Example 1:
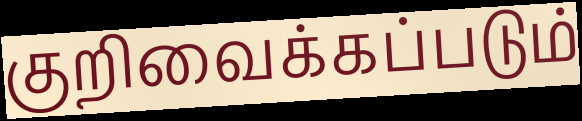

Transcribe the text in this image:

குறிவைக்கப்படும்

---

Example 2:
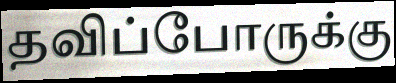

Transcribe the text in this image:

தவிப்போருக்கு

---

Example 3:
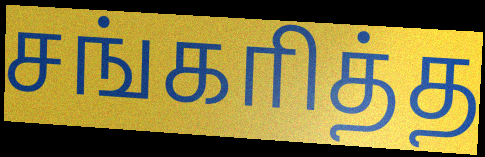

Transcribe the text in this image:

சங்கரித்த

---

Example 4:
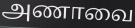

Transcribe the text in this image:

அணாவை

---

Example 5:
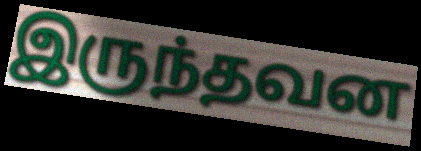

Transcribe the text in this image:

இருந்தவன